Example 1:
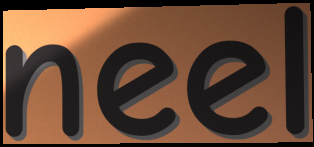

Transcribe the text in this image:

neel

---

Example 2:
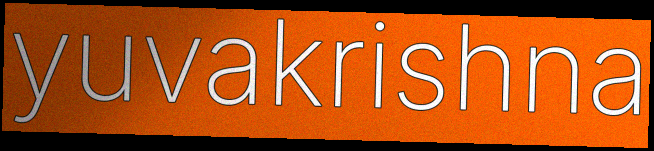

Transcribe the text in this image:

yuvakrishna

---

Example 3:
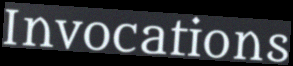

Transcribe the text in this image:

Invocations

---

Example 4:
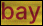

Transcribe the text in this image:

bay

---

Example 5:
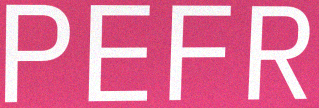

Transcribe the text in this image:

PEFR